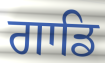
ਗਾਡਿ